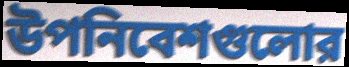
উপনিবেশগুলোর